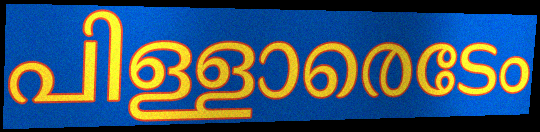
പിള്ളാരെടേം